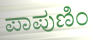
ಪಾಪುಣಿಂ